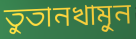
তুতানখামুন